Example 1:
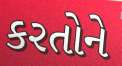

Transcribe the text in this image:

કરતોને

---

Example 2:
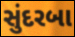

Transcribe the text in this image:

સુંદરબા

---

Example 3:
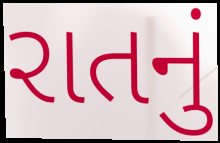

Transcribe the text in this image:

રાતનું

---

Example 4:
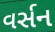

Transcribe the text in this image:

વર્સન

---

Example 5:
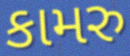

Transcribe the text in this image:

કામરુ